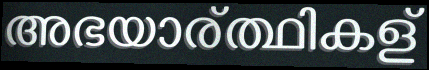
അഭയാര്ത്ഥികള്